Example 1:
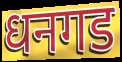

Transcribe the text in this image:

धनगड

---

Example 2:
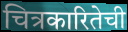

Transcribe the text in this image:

चित्रकारितेची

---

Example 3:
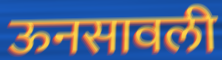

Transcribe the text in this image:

ऊनसावली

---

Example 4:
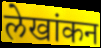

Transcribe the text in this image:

लेखांकन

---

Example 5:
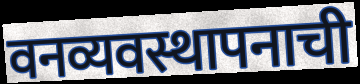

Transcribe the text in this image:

वनव्यवस्थापनाची